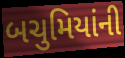
બચુમિયાંની